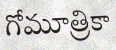
గోమూత్రికా